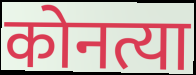
कोनत्या